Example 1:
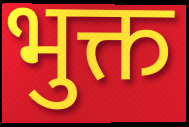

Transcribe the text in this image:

भुक्त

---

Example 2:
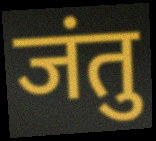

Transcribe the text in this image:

जंतु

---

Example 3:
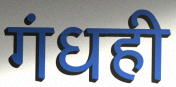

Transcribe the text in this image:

गंधही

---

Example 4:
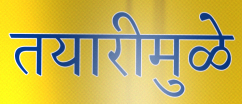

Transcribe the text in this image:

तयारीमुळे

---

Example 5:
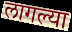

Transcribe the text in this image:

लागल्‍या